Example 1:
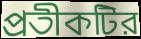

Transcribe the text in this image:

প্রতীকটির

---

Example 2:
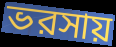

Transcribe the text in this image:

ভরসায়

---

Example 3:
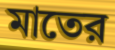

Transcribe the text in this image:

মাতের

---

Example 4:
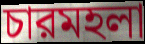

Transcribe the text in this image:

চারমহলা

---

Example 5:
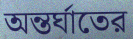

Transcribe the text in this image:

অন্তর্ঘাতের